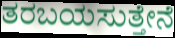
ತರಬಯಸುತ್ತೇನೆ